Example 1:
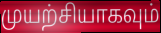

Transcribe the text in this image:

முயற்சியாகவும்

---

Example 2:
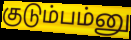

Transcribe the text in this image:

குடும்பம்னு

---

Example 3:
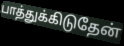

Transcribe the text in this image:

பாத்துக்கிடுதேன்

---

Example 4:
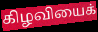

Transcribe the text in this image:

கிழவியைக்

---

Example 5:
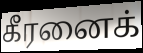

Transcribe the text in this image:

கீரனைக்